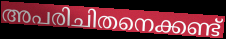
അപരിചിതനെക്കണ്ട്